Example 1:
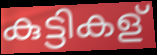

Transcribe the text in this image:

കുട്ടികള്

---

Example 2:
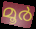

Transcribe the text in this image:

മൂർ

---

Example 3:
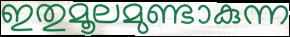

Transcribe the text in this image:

ഇതുമൂലമുണ്ടാകുന്ന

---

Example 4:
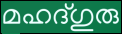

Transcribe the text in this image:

മഹദ്ഗുരു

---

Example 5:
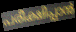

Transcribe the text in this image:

പരീക്ഷിപ്പാൻ